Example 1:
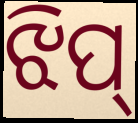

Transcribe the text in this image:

ଝିପ୍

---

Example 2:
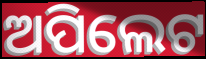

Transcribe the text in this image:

ଅପିଲେଟ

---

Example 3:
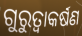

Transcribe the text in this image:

ଗୁରୁତ୍ଵାକର୍ଷଣ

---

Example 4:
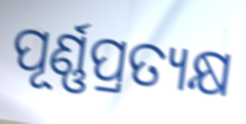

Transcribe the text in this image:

ପୂର୍ଣ୍ଣପ୍ରତ୍ୟକ୍ଷ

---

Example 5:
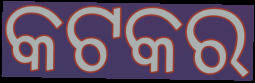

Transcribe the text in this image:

କଟକର